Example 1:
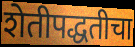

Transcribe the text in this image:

शेतीपद्धतीचा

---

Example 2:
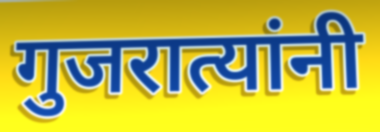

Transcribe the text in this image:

गुजरात्यांनी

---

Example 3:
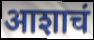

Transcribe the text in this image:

आशाचं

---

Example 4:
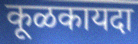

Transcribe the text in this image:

कूळकायदा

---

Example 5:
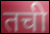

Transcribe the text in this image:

तची